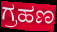
ಗ್ರಹಣ